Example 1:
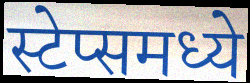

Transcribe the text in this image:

स्टेप्समध्ये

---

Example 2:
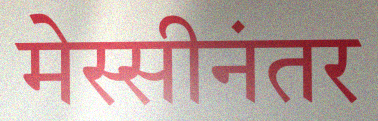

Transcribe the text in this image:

मेस्सीनंतर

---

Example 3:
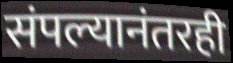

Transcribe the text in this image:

संपल्यानंतरही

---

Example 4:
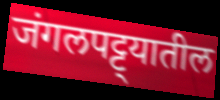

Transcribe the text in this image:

जंगलपट्ट्यातील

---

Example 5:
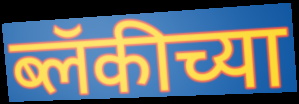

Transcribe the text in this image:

ब्लॅकीच्या